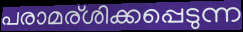
പരാമര്ശിക്കപ്പെടുന്ന